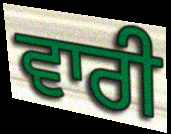
ਵਾਰੀ